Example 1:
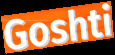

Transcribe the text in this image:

Goshti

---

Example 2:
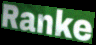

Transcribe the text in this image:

Ranke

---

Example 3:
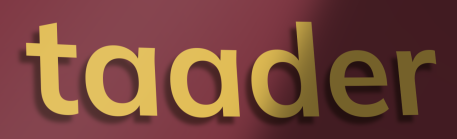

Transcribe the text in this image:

taader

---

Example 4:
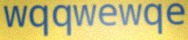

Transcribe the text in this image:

wqqwewqe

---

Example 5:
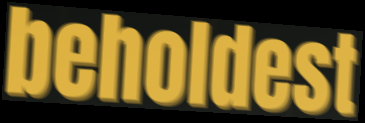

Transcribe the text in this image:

beholdest